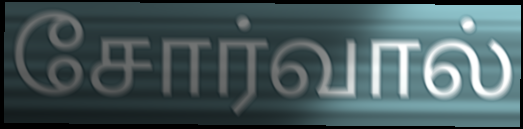
சோர்வால்